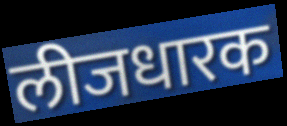
लीजधारक